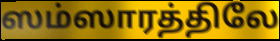
ஸம்ஸாரத்திலே